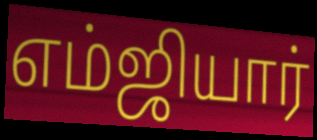
எம்ஜியார்